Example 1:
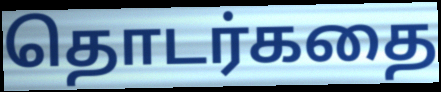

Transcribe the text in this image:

தொடர்கதை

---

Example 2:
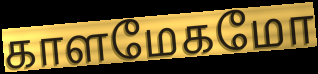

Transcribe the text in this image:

காளமேகமோ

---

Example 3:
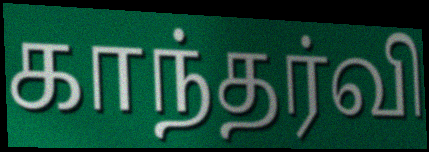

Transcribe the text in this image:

காந்தர்வி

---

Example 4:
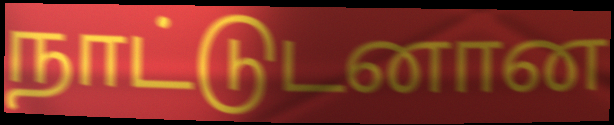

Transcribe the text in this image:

நாட்டுடனான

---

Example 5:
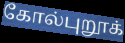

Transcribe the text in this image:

கோல்புறூக்